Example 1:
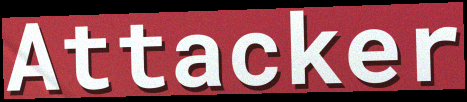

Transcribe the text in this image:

Attacker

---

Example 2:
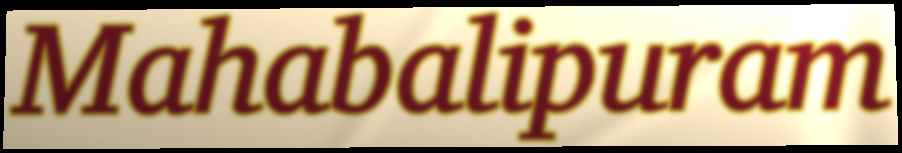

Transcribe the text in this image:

Mahabalipuram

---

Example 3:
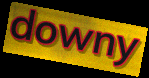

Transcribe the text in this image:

downy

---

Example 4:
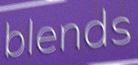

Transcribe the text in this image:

blends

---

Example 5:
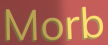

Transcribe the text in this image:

Morb